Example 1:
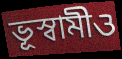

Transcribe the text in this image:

ভূস্বামীও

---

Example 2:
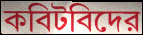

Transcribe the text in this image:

কবিটবিদের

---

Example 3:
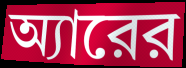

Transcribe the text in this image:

অ্যারের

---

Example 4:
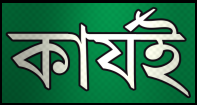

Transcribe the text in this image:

কার্যই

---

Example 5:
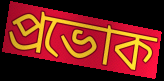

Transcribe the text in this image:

প্রভোক